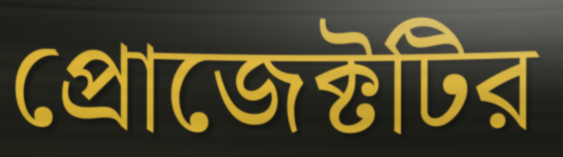
প্রোজেক্টটির